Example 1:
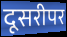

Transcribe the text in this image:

दूसरीपर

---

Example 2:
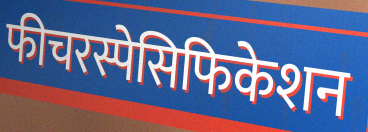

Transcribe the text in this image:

फीचरस्पेसिफिकेशन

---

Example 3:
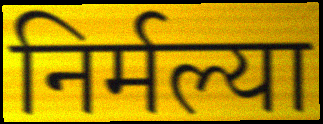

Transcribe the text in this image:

निर्मल्या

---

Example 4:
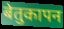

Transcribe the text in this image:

बेतुकापन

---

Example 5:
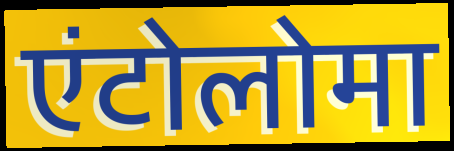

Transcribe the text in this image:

एंटोलोमा